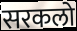
सरकलो